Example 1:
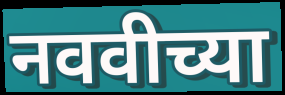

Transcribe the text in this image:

नववीच्या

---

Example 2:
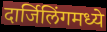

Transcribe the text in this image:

दार्जिलिंगमध्ये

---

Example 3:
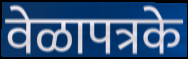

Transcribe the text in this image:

वेळापत्रके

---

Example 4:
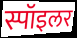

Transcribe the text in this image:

स्पॉइलर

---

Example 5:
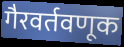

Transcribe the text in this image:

गैरवर्तवणूक